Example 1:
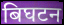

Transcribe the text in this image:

बिघटन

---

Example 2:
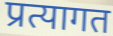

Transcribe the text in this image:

प्रत्यागत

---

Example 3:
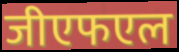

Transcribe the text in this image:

जीएफएल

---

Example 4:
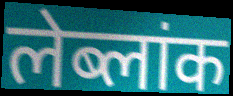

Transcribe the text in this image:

लेब्लांक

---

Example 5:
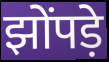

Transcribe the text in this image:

झोंपड़े